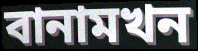
বানামখন